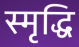
स्मृद्धि